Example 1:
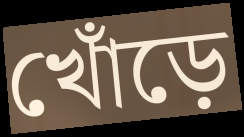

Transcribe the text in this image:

খোঁড়ে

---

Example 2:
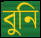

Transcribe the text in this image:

বুনি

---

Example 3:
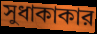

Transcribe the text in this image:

সুধাকাকার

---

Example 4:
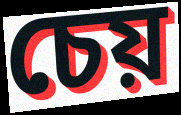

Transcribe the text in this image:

চেয়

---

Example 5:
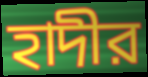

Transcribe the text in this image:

হাদীর